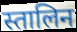
स्तालिन